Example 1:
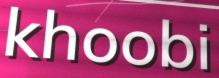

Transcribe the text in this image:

khoobi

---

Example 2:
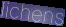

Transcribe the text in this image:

lichens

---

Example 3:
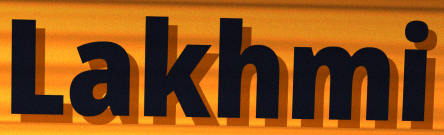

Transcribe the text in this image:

Lakhmi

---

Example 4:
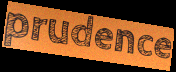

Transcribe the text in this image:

prudence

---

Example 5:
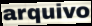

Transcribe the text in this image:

arquivo